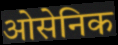
ओसेनिक